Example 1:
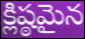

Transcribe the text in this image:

క్లిష్ఠమైన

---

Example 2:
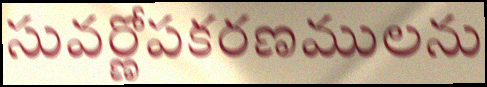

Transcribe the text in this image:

సువర్ణోపకరణములను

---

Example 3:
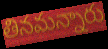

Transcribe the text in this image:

తినమన్నారు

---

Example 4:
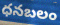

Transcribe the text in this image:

ధనబలం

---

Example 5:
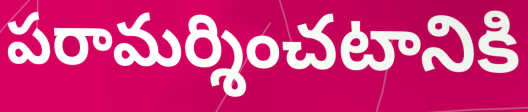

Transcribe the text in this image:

పరామర్శించటానికి